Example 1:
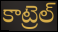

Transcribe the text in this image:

కాట్రెల్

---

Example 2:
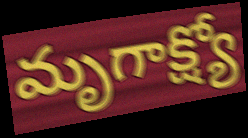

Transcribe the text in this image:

మృగాక్ష్యో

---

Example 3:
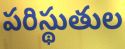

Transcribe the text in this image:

పరిస్థుతుల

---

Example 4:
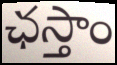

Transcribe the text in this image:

ఛస్తాం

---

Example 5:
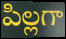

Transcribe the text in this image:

పిల్లగా